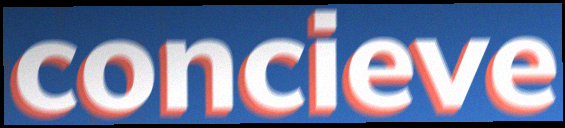
concieve